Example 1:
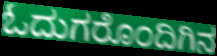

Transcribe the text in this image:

ಓದುಗರೊಂದಿಗಿನ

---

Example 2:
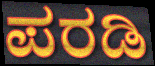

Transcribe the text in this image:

ಪರಡಿ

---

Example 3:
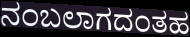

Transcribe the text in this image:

ನಂಬಲಾಗದಂತಹ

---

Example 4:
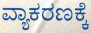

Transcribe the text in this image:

ವ್ಯಾಕರಣಕ್ಕೆ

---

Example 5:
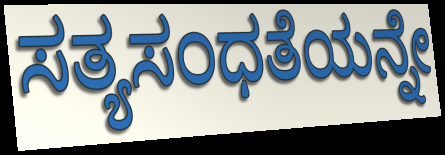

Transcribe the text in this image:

ಸತ್ಯಸಂಧತೆಯನ್ನೇ